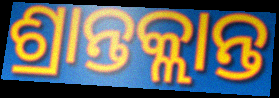
ଶ୍ରାନ୍ତକ୍ଲାନ୍ତ